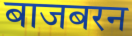
बाजबरन